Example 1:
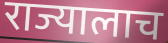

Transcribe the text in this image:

राज्यालाच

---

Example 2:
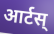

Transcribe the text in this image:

आर्टस्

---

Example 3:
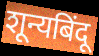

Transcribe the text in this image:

शून्यबिंदू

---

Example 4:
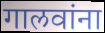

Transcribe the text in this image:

गालवांना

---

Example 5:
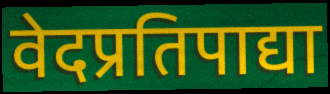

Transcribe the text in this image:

वेदप्रतिपाद्या